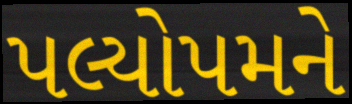
પલ્યોપમને